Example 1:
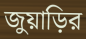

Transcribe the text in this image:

জুয়াড়ির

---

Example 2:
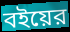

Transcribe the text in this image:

বইয়ের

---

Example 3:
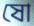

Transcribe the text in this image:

ষো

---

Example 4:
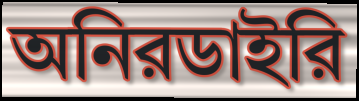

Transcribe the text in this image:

অনিরডাইরি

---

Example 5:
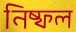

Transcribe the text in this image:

নিষ্ফল